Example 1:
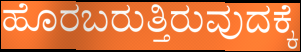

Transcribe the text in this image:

ಹೊರಬರುತ್ತಿರುವುದಕ್ಕೆ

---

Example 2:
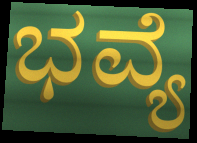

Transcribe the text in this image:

ಭವ್ಯೆ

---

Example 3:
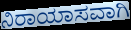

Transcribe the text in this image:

ನಿರಾಯಾಸವಾಗಿ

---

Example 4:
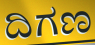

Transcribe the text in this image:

ದಿಗಣ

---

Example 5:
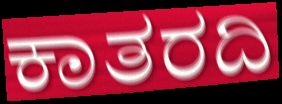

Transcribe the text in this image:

ಕಾತರದಿ